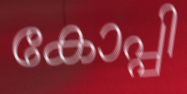
കോപ്പി